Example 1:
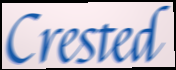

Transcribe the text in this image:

Crested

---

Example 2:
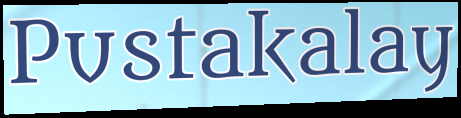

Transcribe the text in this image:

Pustakalay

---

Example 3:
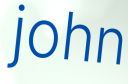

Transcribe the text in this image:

john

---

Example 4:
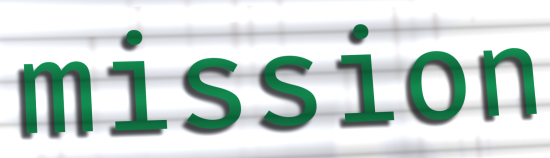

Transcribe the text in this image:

mission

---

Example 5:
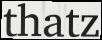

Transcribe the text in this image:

thatz